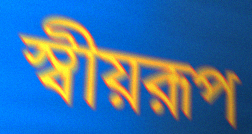
স্বীয়রূপ